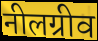
नीलग्रीव